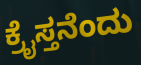
ಕ್ರೈಸ್ತನೆಂದು